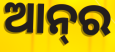
ଆନ୍‌ର